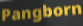
Pangborn